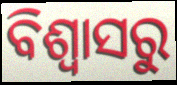
ବିଶ୍ବାସରୁ